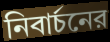
নিবার্চনের